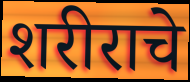
शरीराचे